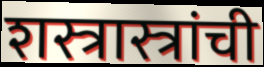
शस्त्रास्त्रांची